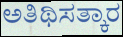
ಅತಿಥಿಸತ್ಕಾರ